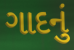
ગાદનું